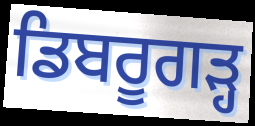
ਡਿਬਰੂਗੜ੍ਹ